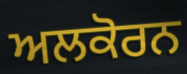
ਅਲਕੋਰਨ